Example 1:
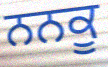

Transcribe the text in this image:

ਨਨਕੂ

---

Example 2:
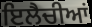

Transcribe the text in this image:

ਇਲੈਚੀਆਂ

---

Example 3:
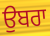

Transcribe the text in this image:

ਉਬਰਾ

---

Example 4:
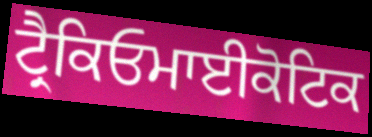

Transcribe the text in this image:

ਟ੍ਰੈਕਿਓਮਾਈਕੋਟਿਕ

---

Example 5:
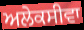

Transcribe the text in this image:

ਅਲੇਕਸੀਵਾ